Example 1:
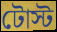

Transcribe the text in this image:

টোস্ট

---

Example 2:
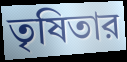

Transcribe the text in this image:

তৃষিতার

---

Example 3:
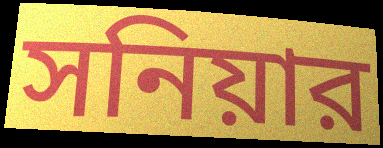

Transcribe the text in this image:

সনিয়ার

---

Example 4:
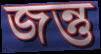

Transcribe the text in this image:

জন্তু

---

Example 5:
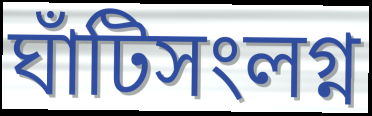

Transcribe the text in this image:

ঘাঁটিসংলগ্ন